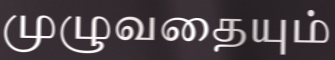
முழுவதையும்